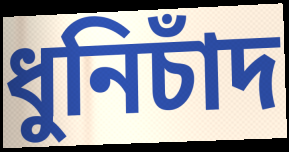
ধুনিচাঁদ